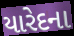
યારેદના